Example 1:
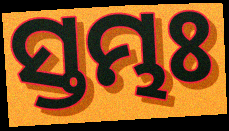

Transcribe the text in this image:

ସ୍ତମ୍ଭଃ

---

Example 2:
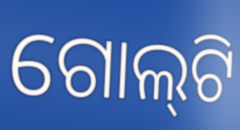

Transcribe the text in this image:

ଗୋଲ୍‍ଟି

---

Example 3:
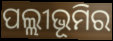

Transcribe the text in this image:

ପଲ୍ଲୀଭୂମିର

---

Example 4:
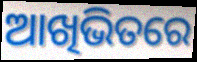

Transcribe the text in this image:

ଆଖିଭିତରେ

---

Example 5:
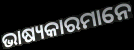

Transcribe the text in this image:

ଭାଷ୍ୟକାରମାନେ